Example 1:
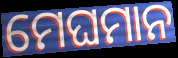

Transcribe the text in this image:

ମେଘମାନ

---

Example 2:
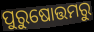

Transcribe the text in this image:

ପୁରୁଷୋତ୍ତମରୁ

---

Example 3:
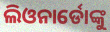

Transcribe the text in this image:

ଲିଓନାର୍ଡୋଙ୍କୁ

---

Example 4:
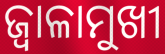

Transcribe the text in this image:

ଜ୍ୱାଳାମୁଖୀ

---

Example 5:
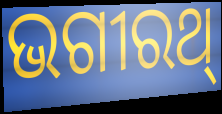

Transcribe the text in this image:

ଭଗୀରଥ୍